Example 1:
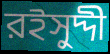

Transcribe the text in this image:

রইসুদ্দী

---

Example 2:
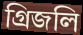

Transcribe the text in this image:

গ্রিজলি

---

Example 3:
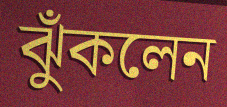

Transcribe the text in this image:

ঝুঁকলেন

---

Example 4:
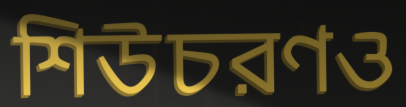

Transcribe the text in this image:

শিউচরণও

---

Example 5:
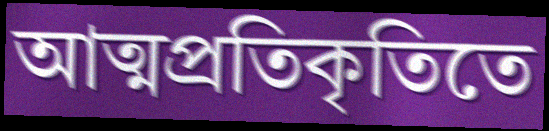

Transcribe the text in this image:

আত্মপ্রতিকৃতিতে